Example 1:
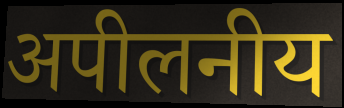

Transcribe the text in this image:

अपीलनीय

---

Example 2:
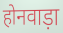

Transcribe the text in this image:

होनवाड़ा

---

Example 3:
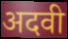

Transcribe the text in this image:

अदवी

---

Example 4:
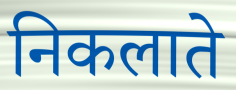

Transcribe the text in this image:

निकलाते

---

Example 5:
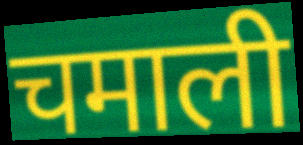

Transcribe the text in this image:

चमाली